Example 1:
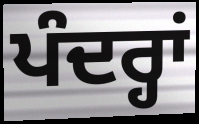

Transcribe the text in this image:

ਪੰਦਰ੍ਹਾਂ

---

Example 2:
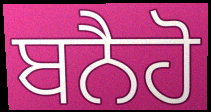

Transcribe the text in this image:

ਬਨੈਹੋ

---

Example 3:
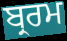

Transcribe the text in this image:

ਬ੍ਰਰਮ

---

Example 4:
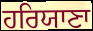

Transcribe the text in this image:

ਹਰਿਯਾਣਾ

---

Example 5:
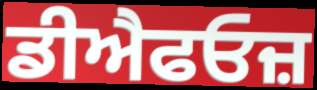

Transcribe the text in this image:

ਡੀਐਫਓਜ਼